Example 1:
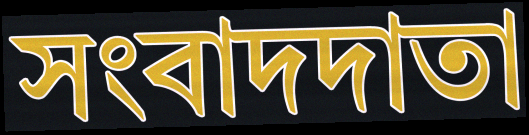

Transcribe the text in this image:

সংবাদদাতা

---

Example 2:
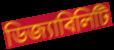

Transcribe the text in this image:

ডিজ্যাবিলিটি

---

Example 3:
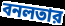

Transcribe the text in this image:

বনলতার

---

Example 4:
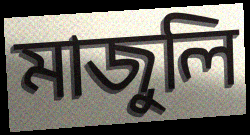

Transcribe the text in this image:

মাজুলি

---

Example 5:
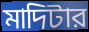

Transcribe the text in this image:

মাদিটার